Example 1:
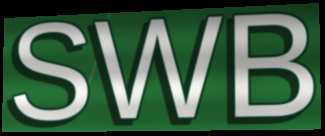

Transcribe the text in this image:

SWB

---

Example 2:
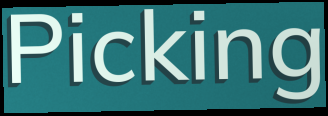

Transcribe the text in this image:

Picking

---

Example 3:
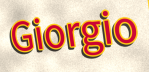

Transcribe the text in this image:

Giorgio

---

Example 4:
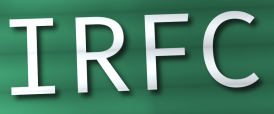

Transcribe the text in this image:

IRFC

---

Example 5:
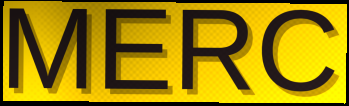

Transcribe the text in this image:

MERC